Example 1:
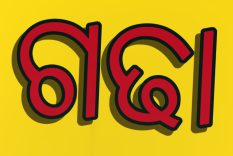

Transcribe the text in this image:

ଗଢା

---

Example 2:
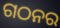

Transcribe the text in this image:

ଗଠନର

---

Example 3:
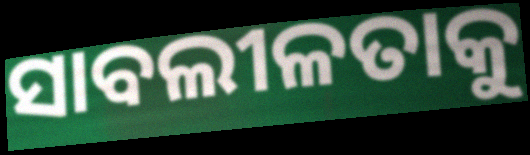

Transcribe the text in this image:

ସାବଲୀଳତାକୁ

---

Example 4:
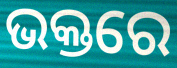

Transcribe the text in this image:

ଭକ୍ତରେ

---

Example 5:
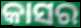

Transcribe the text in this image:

କାସର